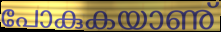
പോകുകയാണു്